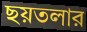
ছয়তলার